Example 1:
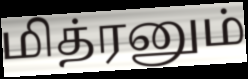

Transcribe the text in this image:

மித்ரனும்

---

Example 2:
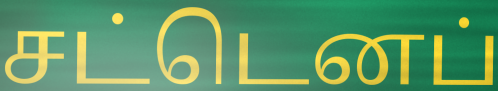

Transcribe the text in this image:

சட்டெனப்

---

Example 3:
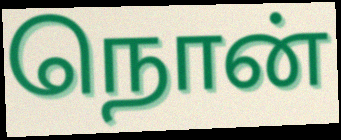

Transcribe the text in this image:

நொன்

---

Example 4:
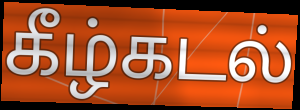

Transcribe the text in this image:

கீழ்கடல்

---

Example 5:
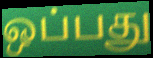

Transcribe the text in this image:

ஒப்பது